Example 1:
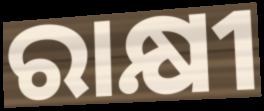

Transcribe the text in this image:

ରାକ୍ଷୀ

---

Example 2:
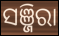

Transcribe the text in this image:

ସଞ୍ଜିରା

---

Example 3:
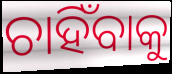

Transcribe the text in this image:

ଚାହିଁବାକୁ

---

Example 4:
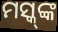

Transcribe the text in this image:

ମସ୍କ୍‌ଙ୍କ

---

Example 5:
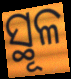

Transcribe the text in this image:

ସ୍ଥୂଳ